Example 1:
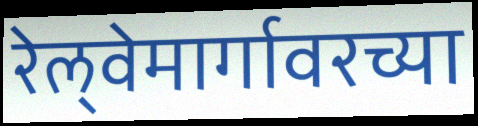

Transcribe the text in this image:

रेल्वेमार्गावरच्या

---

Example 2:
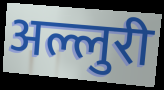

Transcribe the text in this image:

अल्लुरी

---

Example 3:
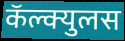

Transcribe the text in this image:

कॅल्क्युलस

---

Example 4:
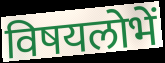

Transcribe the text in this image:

विषयलोभें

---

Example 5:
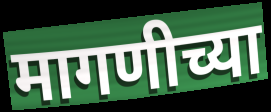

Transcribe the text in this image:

मागणीच्या